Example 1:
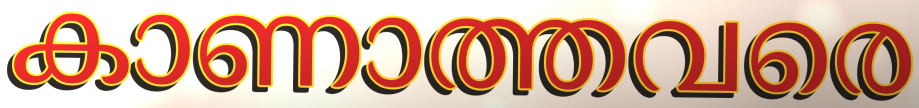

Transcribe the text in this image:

കാണാത്തവരെ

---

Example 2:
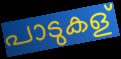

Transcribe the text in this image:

പാടുകള്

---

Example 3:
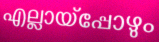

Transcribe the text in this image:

എല്ലായ്പ്പോഴും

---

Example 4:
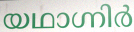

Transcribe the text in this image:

യഥാഗ്നിർ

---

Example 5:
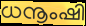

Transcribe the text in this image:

ധനൂംഷി